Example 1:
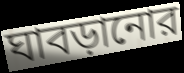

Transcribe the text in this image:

ঘাবড়ানোর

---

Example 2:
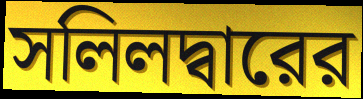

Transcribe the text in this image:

সলিলদ্বারের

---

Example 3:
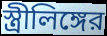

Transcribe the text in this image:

স্ত্রীলিঙ্গের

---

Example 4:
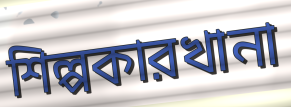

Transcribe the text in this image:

শিল্পকারখানা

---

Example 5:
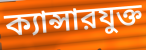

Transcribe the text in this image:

ক্যান্সারযুক্ত